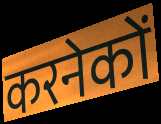
करनेकों